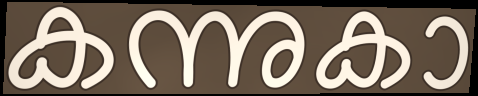
കന്നുകാ